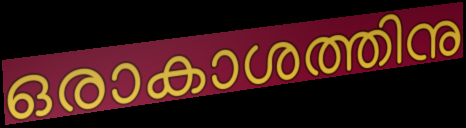
ഒരാകാശത്തിനു